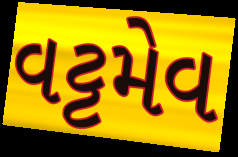
વટ્ટમેવ